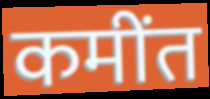
कमींत